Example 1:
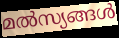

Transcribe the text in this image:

മൽസ്യങ്ങൾ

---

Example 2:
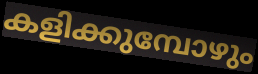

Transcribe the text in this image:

കളിക്കുമ്പോഴും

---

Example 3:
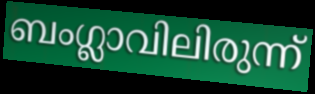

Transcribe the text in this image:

ബംഗ്ലാവിലിരുന്ന്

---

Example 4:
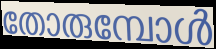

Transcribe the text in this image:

തോരുമ്പോൾ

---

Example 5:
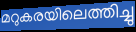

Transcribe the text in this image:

മറുകരയിലെത്തിച്ചു